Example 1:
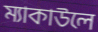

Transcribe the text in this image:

ম্যাকাউলে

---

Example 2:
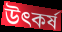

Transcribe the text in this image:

উৎকর্ষ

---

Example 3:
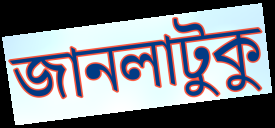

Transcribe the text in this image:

জানলাটুকু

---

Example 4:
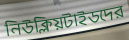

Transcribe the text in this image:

নিউক্লিয়টাইডদের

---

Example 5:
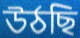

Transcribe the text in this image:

উঠছি